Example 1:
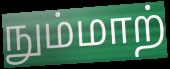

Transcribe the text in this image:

நும்மாற்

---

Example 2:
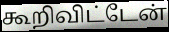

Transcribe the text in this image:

கூறிவிட்டேன்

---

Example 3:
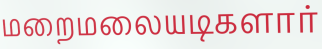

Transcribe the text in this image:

மறைமலையடிகளார்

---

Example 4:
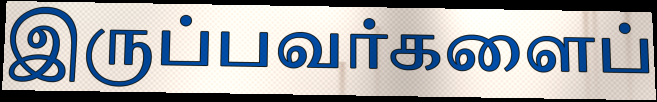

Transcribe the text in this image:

இருப்பவர்களைப்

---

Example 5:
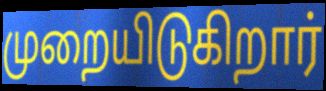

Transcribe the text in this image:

முறையிடுகிறார்